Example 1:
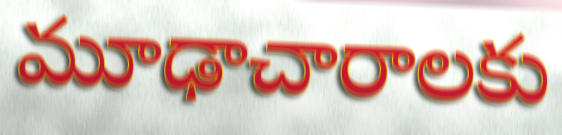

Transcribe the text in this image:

మూఢాచారాలకు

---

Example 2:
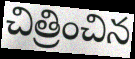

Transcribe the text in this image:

చిత్రించిన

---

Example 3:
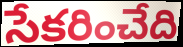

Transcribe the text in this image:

సేకరించేది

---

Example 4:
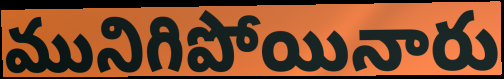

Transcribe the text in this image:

మునిగిపోయినారు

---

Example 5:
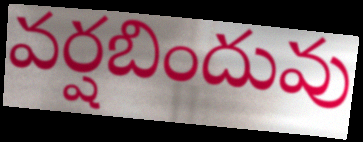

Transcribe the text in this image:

వర్షబిందువు